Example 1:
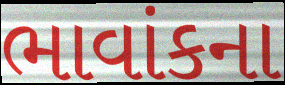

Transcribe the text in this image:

ભાવાંકના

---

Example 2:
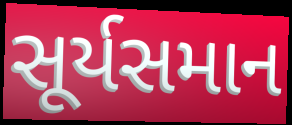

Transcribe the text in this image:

સૂર્યસમાન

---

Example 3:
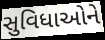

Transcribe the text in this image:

સુવિધાઓને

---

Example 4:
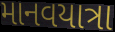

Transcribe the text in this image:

માનવયાત્રા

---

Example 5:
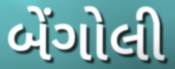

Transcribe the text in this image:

બેંગોલી